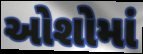
ઓશોમાં